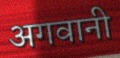
अगवानी